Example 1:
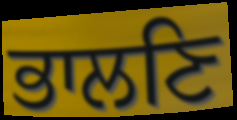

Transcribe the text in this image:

ਭਾਲਣਿ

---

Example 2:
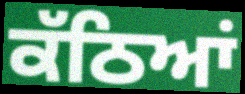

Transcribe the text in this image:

ਕੱਠਿਆਂ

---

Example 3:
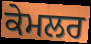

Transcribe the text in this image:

ਕੇਮਲਰ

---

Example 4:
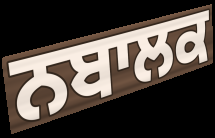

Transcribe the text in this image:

ਨਬਾਲਕ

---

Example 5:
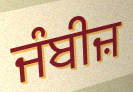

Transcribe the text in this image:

ਜੰਬੀਜ਼